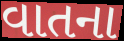
વાતના